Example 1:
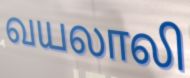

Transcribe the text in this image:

வயலாலி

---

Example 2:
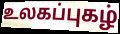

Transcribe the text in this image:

உலகப்புகழ்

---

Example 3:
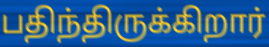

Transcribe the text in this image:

பதிந்திருக்கிறார்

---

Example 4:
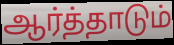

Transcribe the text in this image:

ஆர்த்தாடும்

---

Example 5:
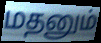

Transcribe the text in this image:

மதனும்